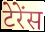
टेरेंस